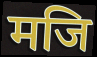
मजि